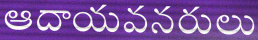
ఆదాయవనరులు